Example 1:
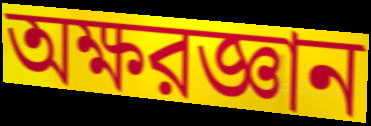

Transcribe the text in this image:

অক্ষরজ্ঞান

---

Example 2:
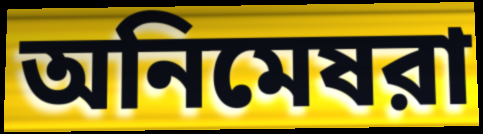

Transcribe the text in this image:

অনিমেষরা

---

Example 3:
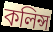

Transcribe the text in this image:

কলিন্স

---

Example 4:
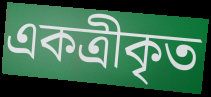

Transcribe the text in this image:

একত্রীকৃত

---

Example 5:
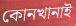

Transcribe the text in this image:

কোনখানাই